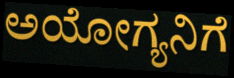
ಅಯೋಗ್ಯನಿಗೆ